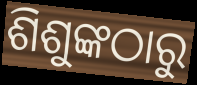
ଶିଶୁଙ୍କଠାରୁ